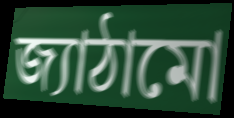
জ্যাঠামো